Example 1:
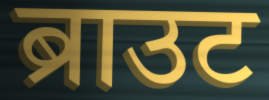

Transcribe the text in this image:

ब्राउट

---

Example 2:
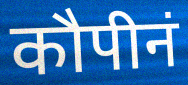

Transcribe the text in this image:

कौपीनं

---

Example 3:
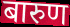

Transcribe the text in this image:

बारुण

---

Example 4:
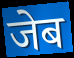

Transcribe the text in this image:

जेब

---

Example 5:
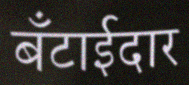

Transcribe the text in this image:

बँटाईदार